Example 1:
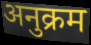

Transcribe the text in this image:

अनुक्रम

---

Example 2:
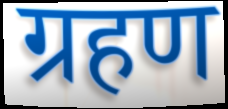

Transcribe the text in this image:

ग्रहण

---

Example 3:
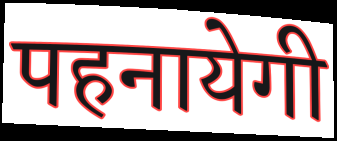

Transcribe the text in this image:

पहनायेगी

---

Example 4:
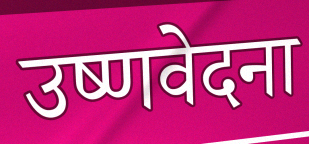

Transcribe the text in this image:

उष्णवेदना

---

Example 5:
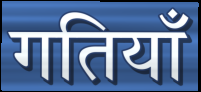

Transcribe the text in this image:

गतियाँ